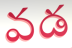
వడ